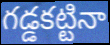
గడ్డకట్టినా